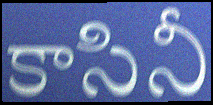
కాసినీ